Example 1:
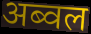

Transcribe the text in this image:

अब्वल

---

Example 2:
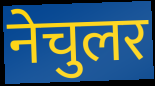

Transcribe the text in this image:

नेचुलर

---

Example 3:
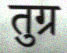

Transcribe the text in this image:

तुग्र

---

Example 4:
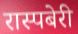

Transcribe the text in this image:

रास्पबेरी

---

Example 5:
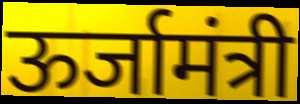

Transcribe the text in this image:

ऊर्जामंत्री